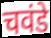
चवंडे